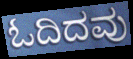
ಓದಿದವು